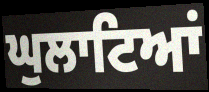
ਘੁਲਾਟਿਆਂ